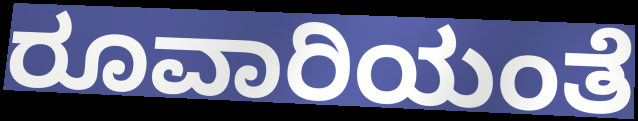
ರೂವಾರಿಯಂತೆ